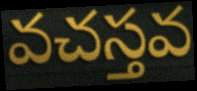
వచస్తవ